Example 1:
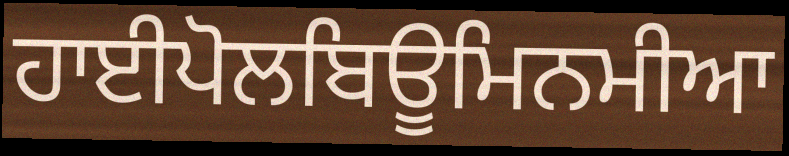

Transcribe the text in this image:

ਹਾਈਪੋਲਬਿਊਮਿਨਮੀਆ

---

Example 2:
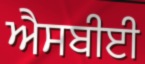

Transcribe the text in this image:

ਐਸਬੀਈ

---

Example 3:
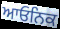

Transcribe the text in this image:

ਆਓਨਿਕ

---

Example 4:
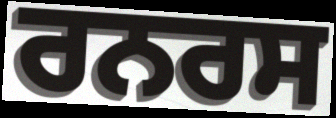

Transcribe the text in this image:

ਰਨਰਸ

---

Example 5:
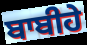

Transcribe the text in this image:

ਬਾਬੀਹੇ